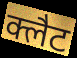
क्लैट